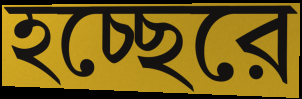
হচ্ছেরে